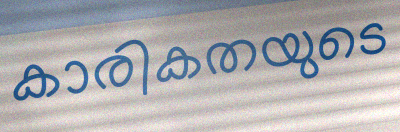
കാരികതയുടെ